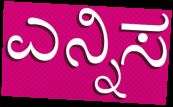
ಎನ್ನಿಸ